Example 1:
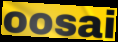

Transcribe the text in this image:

oosai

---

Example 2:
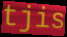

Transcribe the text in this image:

tjis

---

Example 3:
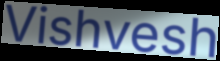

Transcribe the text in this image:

Vishvesh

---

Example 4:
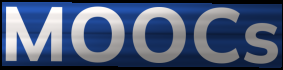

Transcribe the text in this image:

MOOCs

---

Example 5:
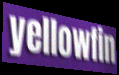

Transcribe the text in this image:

yellowfin